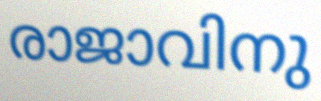
രാജാവിനു